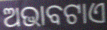
ଅଭାବଟାଏ